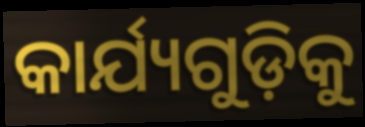
କାର୍ଯ୍ୟଗୁଡ଼ିକୁ